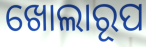
ଖୋଲାରୂପ